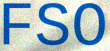
FSO